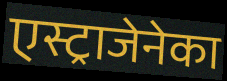
एस्ट्राजेनेका